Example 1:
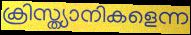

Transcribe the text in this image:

ക്രിസ്ത്യാനികളെന്ന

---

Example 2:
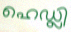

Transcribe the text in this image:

ഹെഡ്ലി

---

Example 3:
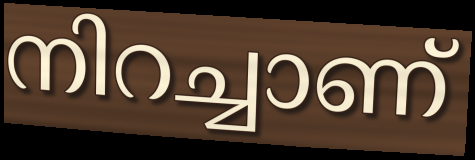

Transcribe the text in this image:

നിറച്ചാണ്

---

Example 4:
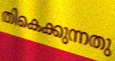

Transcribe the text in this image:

തികെക്കുന്നതു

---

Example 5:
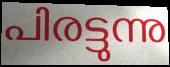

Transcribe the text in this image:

പിരട്ടുന്നു